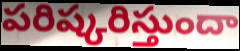
పరిష్కరిస్తుందా